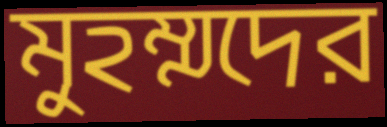
মুহম্মদের